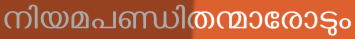
നിയമപണ്ഡിതന്മാരോടും